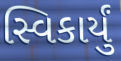
સ્વિકાર્યું